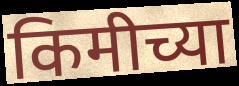
किमीच्या